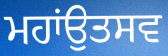
ਮਹਾਂਉਤਸਵ